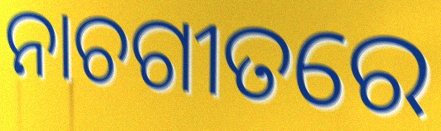
ନାଚଗୀତରେ